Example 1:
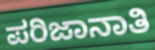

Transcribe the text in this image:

ಪರಿಜಾನಾತಿ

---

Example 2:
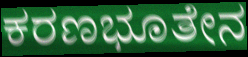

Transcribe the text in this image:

ಕರಣಭೂತೇನ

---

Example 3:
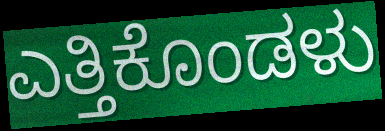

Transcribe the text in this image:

ಎತ್ತಿಕೊಂಡಳು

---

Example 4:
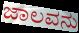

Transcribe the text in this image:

ಜಾಲವನು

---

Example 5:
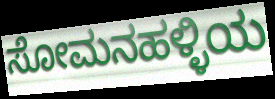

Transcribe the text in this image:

ಸೋಮನಹಳ್ಳಿಯ